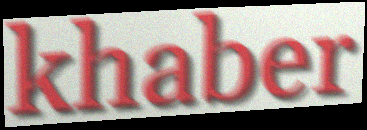
khaber